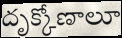
దృక్కోణాలూ